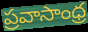
ప్రవాసాంధ్ర